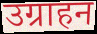
उग्राहन